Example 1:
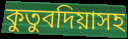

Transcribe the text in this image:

কুতুবদিয়াসহ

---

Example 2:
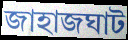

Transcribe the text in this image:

জাহাজঘাট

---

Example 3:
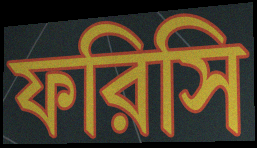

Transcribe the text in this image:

ফরিসি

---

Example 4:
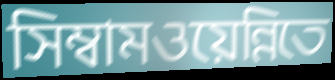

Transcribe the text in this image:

সিম্বামওয়েন্নিতে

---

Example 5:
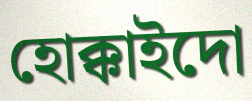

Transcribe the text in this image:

হোক্কাইদো